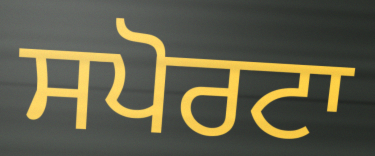
ਸਪੋਰਟਾ